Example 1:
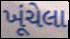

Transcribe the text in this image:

ખૂંચેલા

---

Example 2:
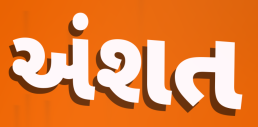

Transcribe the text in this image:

અંશત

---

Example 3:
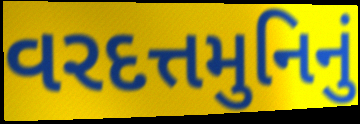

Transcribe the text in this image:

વરદત્તમુનિનું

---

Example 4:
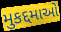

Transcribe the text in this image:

મુકદ્દમાઓ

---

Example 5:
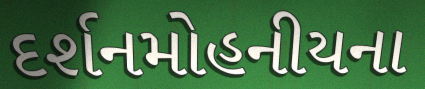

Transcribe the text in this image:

દર્શનમોહનીયના